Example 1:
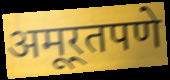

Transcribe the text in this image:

अमूर्तपणे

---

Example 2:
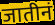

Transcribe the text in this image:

जातीनं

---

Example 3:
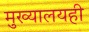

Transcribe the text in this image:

मुख्यालयही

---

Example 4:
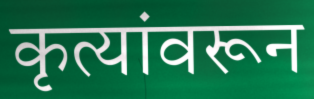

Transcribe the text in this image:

कृत्यांवरून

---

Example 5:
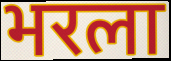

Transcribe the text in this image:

भरला